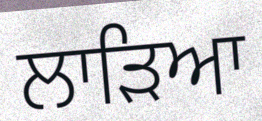
ਲਾੜਿਆ